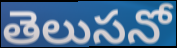
తెలుసనో